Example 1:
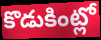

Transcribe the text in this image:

కొడుకింట్లో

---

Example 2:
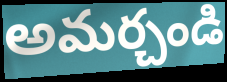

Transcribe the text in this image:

అమర్చండి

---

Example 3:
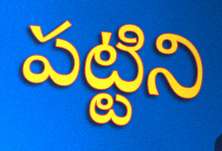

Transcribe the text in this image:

పట్టిని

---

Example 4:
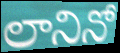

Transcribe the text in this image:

లానినో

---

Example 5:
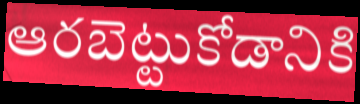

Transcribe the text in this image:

ఆరబెట్టుకోడానికి